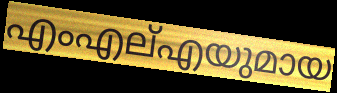
എംഎല്എയുമായ